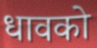
धावको